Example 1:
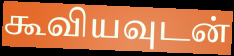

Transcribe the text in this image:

கூவியவுடன்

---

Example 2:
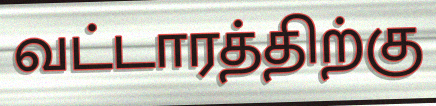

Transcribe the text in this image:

வட்டாரத்திற்கு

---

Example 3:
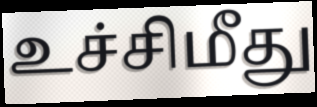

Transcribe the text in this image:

உச்சிமீது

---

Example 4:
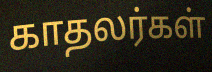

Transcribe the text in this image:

காதலர்கள்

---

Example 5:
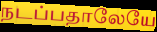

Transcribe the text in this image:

நடப்பதாலேயே